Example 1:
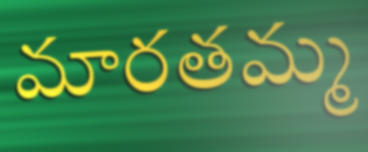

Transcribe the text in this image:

మారతమ్మ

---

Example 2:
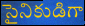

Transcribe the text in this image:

సైనికుడిగా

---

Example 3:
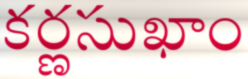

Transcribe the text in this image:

కర్ణసుఖాం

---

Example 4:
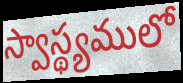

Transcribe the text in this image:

స్వాస్థ్యములో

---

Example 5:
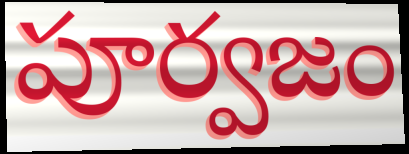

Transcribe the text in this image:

పూర్వజం